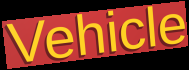
Vehicle